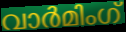
വാർമിംഗ്